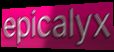
epicalyx